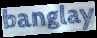
banglay